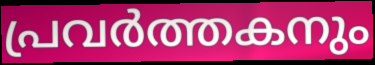
പ്രവർത്തകനും